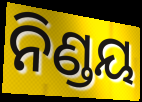
ନିଣ୍ଡୟ